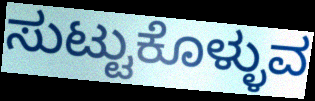
ಸುಟ್ಟುಕೊಳ್ಳುವ